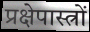
प्रक्षेपास्त्रों